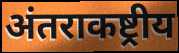
अंतराकष्ट्रीय